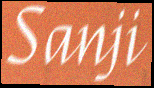
Sanji